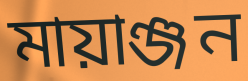
মায়াঞ্জন